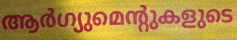
ആർഗ്യുമെന്റുകളുടെ